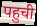
पहुची